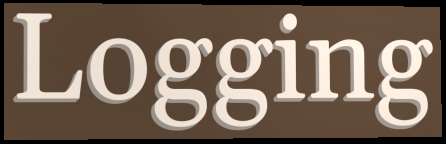
Logging